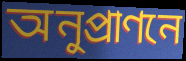
অনুপ্রাণনে